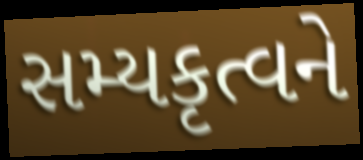
સમ્યકૃત્વને